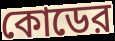
কোডের